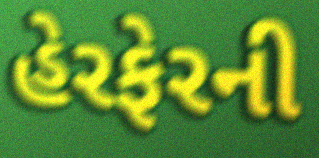
હેરફેરની